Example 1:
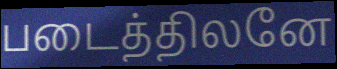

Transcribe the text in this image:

படைத்திலனே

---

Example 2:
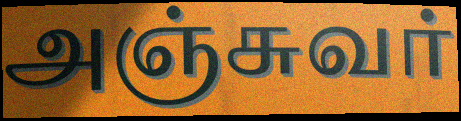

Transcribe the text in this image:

அஞ்சுவர்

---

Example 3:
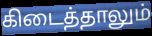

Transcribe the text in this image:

கிடைத்தாலும்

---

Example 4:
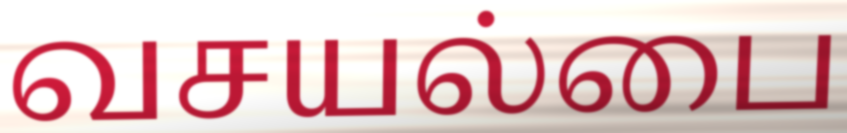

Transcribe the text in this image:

வசயல்பை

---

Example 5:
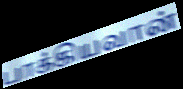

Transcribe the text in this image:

பாக்கியவான்